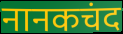
नानकचंद